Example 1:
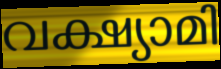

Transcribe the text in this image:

വക്ഷ്യാമി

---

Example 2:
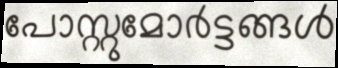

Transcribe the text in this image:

പോസ്റ്റുമോർട്ടങ്ങൾ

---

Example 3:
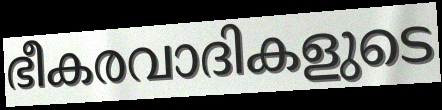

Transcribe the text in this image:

ഭീകരവാദികളുടെ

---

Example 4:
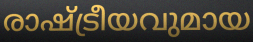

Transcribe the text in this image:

രാഷ്ട്രീയവുമായ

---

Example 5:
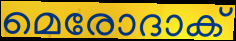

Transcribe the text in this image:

മെരോദാക്